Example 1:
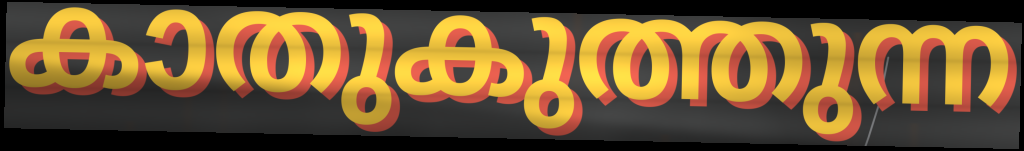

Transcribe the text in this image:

കാതുകുത്തുന്ന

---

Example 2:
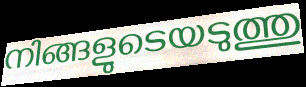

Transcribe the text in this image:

നിങ്ങളുടെയടുത്തു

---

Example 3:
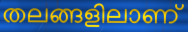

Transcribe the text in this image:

തലങ്ങളിലാണ്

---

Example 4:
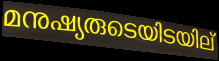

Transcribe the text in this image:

മനുഷ്യരുടെയിടയില്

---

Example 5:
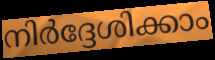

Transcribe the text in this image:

നിർദ്ദേശിക്കാം